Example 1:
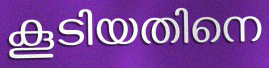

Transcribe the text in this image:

കൂടിയതിനെ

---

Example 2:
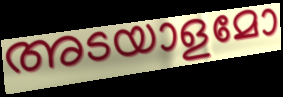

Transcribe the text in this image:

അടയാളമോ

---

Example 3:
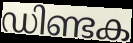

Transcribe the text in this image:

ഡിണ്ടക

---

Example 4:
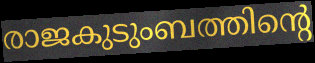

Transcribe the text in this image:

രാജകുടുംബത്തിന്റെ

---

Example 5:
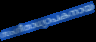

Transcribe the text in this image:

സംഗീതാധ്യാപകനായ